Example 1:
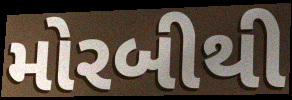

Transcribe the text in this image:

મોરબીથી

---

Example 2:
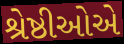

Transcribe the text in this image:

શ્રેષ્ઠીઓએ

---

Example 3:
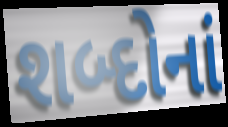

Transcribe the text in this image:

શબ્દોનાં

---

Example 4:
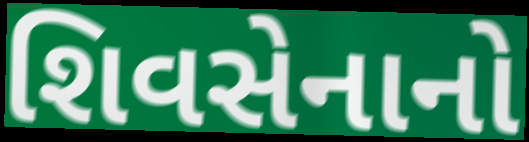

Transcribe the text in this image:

શિવસેનાનો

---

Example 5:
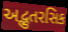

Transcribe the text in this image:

અદ્ભુતરસિક